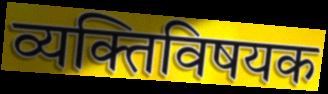
व्यक्तिविषयक